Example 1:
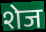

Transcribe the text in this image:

शेज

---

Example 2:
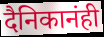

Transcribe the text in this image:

दैनिकानंही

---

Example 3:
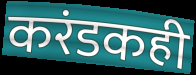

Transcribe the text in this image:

करंडकही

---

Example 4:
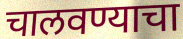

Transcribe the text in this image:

चालवण्याचा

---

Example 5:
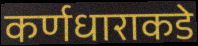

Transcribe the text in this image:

कर्णधाराकडे